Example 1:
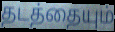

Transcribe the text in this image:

தடத்தையும்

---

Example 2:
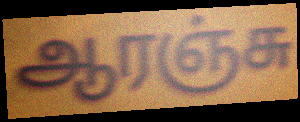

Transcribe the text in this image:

ஆரஞ்சு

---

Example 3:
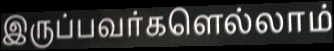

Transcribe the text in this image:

இருப்பவர்களெல்லாம்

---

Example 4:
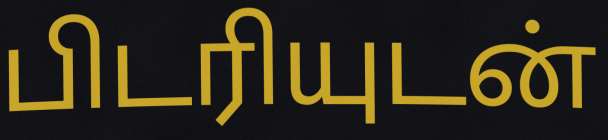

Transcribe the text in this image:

பிடரியுடன்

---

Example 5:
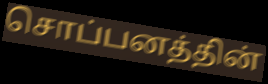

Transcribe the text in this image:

சொப்பனத்தின்